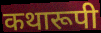
कथारूपी